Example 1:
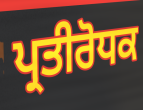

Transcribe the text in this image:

ਪ੍ਰਤੀਰੋਧਕ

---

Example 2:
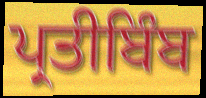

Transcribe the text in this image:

ਪ੍ਰਤੀਬਿੰਬ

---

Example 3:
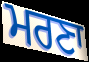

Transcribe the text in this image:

ਮਰਣਾ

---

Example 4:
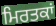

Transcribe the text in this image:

ਮਿਰਤਕਾਂ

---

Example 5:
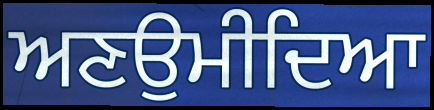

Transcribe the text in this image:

ਅਣਉਮੀਦਿਆ